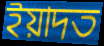
ইয়াদত